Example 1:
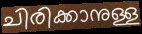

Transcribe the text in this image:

ചിരിക്കാനുള്ള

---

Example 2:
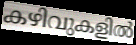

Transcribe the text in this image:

കഴിവുകളിൽ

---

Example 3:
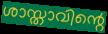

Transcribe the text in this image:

ശാസ്താവിന്റെ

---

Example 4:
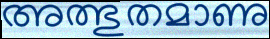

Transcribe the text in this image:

അത്ഭുതമാണു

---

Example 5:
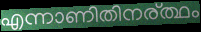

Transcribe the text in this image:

എന്നാണിതിനര്ത്ഥം